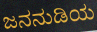
ಜನನುಡಿಯ